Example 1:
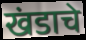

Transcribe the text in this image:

खंडाचे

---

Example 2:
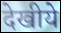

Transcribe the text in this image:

देखीये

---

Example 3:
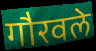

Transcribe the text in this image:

गौरवले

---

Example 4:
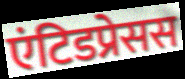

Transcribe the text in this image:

एंटिडप्रेसस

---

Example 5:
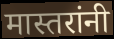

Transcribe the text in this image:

मास्तरांनी